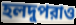
হলদুপরাও